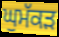
ਘੁਮੱਕੜ